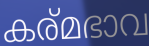
കര്മഭാവ